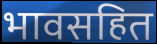
भावसहित